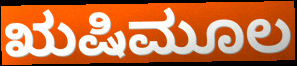
ಋಷಿಮೂಲ